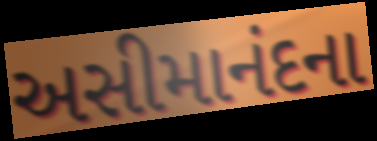
અસીમાનંદના